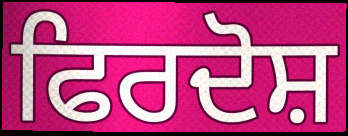
ਫਿਰਦੋਸ਼